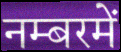
नम्बरमें